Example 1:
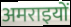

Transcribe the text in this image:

अमराइयों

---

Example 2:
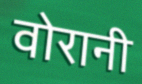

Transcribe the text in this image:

वोरानी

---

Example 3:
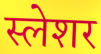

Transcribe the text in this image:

स्लेशर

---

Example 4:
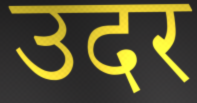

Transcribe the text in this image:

उदर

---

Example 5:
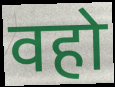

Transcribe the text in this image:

वहो